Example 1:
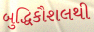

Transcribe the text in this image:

બુદ્ધિકૌશલથી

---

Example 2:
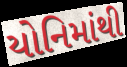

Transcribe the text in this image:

યોનિમાંથી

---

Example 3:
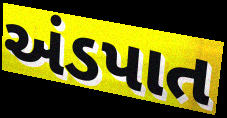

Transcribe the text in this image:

અંડપાત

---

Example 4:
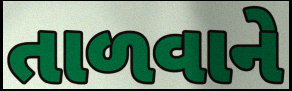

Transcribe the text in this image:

તાળવાને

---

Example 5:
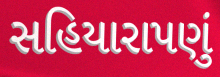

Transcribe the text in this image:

સહિયારાપણું